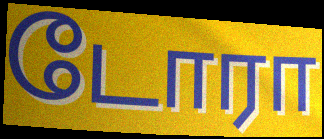
டோரா